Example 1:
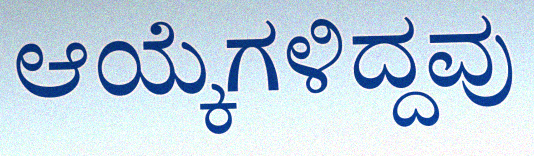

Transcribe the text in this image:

ಆಯ್ಕೆಗಳಿದ್ದವು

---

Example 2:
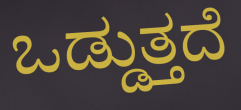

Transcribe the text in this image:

ಒಡ್ಡುತ್ತದೆ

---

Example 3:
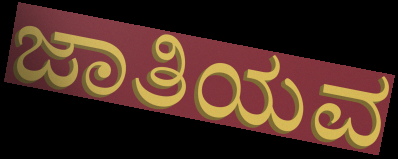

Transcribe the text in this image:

ಜಾತಿಯವ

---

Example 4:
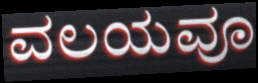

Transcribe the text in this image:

ವಲಯವೂ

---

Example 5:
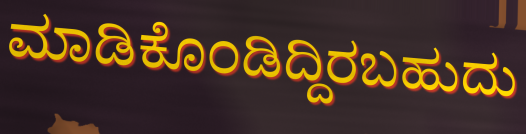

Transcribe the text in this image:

ಮಾಡಿಕೊಂಡಿದ್ದಿರಬಹುದು